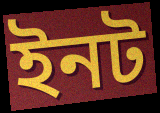
ইনট